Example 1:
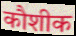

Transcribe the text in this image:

कौशीक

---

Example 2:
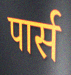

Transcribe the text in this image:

पार्स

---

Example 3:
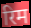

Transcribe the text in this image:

रिम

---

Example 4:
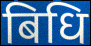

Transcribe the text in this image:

बिधि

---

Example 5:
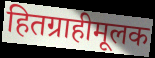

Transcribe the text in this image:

हितग्राहीमूलक